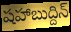
షహాబుద్దిన్